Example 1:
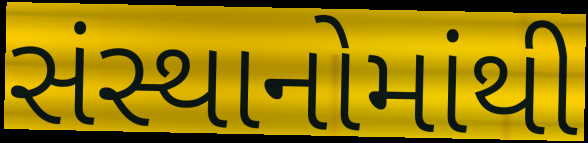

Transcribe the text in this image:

સંસ્થાનોમાંથી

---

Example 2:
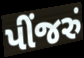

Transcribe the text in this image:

પીંજરું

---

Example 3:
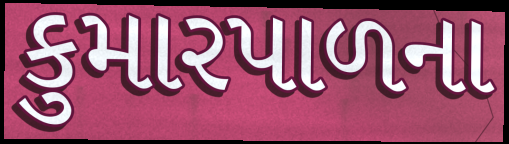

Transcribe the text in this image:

કુમારપાળના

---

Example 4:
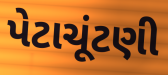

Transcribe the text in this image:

પેટાચૂંટણી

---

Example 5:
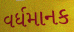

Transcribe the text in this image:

વર્ધમાનક